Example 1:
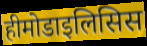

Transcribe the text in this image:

हीमोडाइलिसिस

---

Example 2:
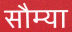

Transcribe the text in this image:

सौम्या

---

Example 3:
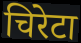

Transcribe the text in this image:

चिरेटा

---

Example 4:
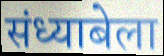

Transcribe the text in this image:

संध्याबेला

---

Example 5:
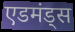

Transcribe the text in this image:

एडमंड्स